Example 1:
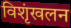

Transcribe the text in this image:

विशृंखलन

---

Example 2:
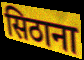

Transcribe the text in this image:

सिठाना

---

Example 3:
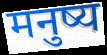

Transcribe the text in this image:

मनुष्‍य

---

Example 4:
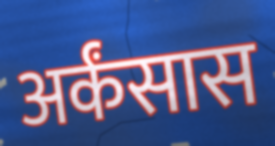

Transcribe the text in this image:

अर्कंसास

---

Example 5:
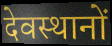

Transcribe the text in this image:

देवस्थानों